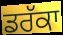
ਡਰੱਕਾ